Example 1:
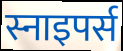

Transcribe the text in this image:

स्नाइपर्स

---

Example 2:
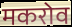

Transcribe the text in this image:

मकरोव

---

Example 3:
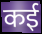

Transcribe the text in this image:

कई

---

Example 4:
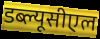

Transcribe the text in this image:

डब्ल्यूसीएल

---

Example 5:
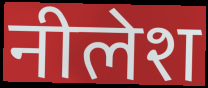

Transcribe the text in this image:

नीलेश